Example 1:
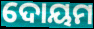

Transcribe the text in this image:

ଦୋୟମ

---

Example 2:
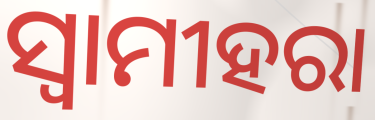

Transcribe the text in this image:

ସ୍ଵାମୀହରା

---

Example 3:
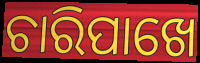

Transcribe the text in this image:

ଚାରିପାଖେ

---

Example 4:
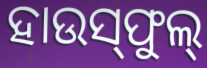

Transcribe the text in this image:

ହାଉସ୍‌ଫୁଲ୍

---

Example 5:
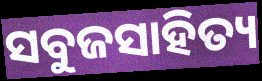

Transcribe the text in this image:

ସବୁଜସାହିତ୍ୟ